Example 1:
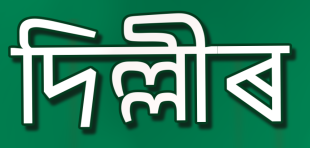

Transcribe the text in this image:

দিল্লীৰ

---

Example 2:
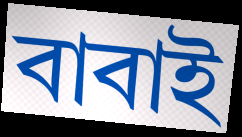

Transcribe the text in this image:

বাবাই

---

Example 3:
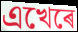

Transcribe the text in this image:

এখেৰে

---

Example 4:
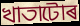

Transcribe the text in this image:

খাতাটোৰ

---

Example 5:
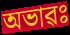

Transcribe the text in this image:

অভাৱঃ